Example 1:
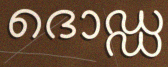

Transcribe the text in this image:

ദൊഡ്ഡ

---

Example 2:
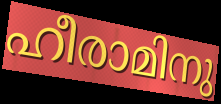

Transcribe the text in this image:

ഹീരാമിനു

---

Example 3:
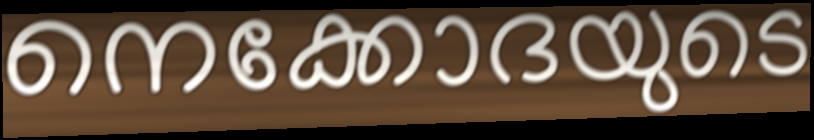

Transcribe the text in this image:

നെക്കോദയുടെ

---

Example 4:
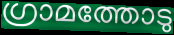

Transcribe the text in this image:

ഗ്രാമത്തോടു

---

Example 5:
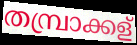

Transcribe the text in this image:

തമ്പ്രാക്കള്